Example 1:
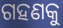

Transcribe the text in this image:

ଗହଣକୁ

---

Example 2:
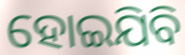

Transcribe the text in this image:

ହୋଇଯିବି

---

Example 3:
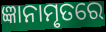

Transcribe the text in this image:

ଜ୍ଞାନାମୃତରେ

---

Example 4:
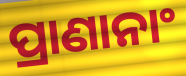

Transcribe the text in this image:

ପ୍ରାଣାନାଂ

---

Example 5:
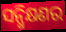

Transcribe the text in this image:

ସନ୍ଧିକ୍ଷଣର